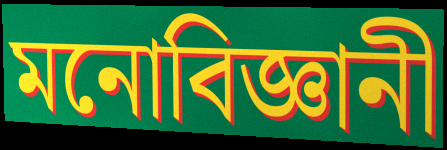
মনোবিজ্ঞানী